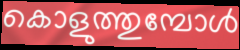
കൊളുത്തുമ്പോൾ